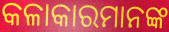
କଳାକାରମାନଙ୍କ